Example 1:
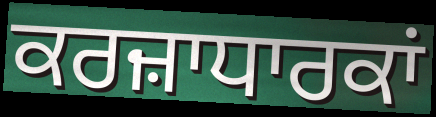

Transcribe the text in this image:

ਕਰਜ਼ਾਧਾਰਕਾਂ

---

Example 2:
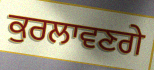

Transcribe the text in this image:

ਕੁਰਲਾਵਣਗੇ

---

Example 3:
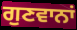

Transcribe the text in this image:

ਗੁਣਵਾਨਾਂ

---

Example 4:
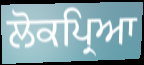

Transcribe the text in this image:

ਲੋਕਪ੍ਰਿਆ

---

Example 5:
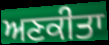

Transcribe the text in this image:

ਅਣਕੀਤਾ